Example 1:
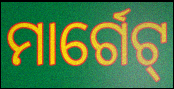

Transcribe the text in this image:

ମାର୍ଗେଟ୍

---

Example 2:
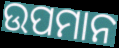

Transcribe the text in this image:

ଉପମାନ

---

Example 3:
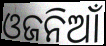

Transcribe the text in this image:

ଓଜନିଆଁ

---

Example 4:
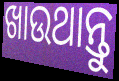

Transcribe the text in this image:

ଖାଉଥାନ୍ତୁ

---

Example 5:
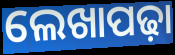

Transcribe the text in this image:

ଲେଖାପଢ଼ା